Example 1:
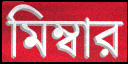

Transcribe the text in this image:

মিম্বার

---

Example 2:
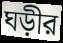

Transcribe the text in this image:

ঘড়ীর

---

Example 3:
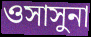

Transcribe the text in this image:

ওসাসুনা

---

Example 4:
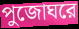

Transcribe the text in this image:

পুজোঘরে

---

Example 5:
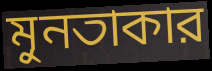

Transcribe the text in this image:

মুনতাকার